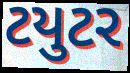
ટયુટર